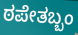
ಠಪೇತಬ್ಬಂ